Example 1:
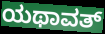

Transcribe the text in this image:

ಯಥಾವತ್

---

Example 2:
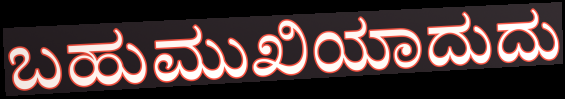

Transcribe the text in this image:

ಬಹುಮುಖಿಯಾದುದು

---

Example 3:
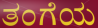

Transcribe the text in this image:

ತಂಗೆಯ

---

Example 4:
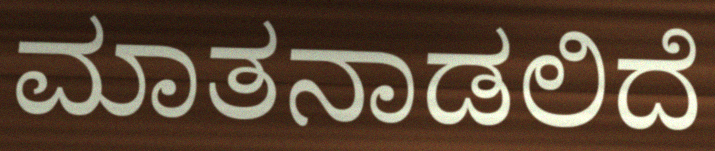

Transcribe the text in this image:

ಮಾತನಾಡಲಿದೆ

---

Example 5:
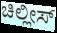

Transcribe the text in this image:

ಚಿಲ್ಲೀಸ್